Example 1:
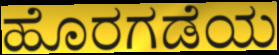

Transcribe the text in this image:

ಹೊರಗಡೆಯ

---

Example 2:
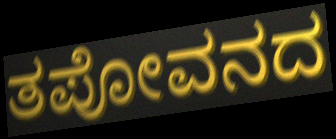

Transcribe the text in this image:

ತಪೋವನದ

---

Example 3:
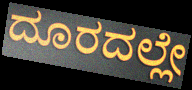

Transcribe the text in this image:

ದೂರದಲ್ಲೇ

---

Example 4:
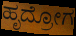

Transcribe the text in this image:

ಹೃದ್ರೋಗ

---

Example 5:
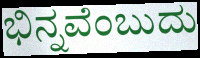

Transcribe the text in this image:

ಭಿನ್ನವೆಂಬುದು